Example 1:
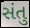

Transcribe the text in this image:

સંતુ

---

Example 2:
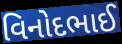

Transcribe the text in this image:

વિનોદભાઈ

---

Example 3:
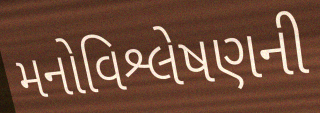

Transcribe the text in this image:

મનોવિશ્લેષણની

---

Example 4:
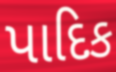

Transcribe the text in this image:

પાદિક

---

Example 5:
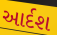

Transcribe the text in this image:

આર્દશ